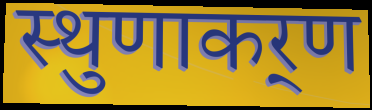
स्थुणाकर्ण